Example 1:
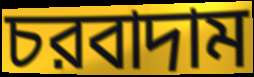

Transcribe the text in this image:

চরবাদাম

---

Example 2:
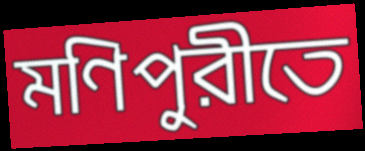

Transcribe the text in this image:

মণিপুরীতে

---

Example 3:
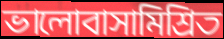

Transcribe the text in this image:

ভালোবাসামিশ্রিত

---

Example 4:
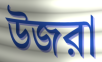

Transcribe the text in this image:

উজরা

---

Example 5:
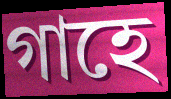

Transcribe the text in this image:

গাহে